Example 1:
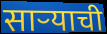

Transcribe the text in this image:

साऱ्याची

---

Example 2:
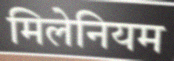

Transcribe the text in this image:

मिलेनियम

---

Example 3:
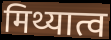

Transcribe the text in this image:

मिथ्यात्व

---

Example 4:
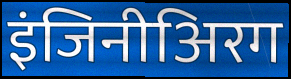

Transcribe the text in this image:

इंजिनीअिरग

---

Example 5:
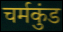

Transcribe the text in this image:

चर्मकुंड